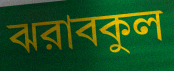
ঝরাবকুল